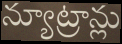
న్యూట్రాన్లు